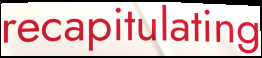
recapitulating